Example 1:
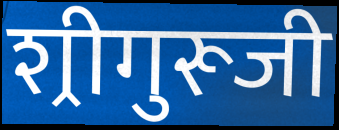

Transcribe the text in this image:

श्रीगुरूजी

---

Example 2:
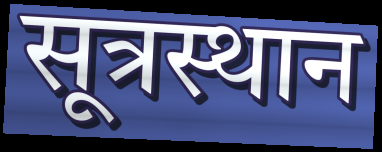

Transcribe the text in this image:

सूत्रस्थान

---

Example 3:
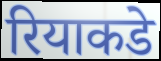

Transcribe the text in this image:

रियाकडे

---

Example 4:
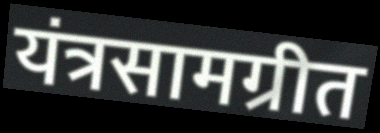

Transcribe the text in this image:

यंत्रसामग्रीत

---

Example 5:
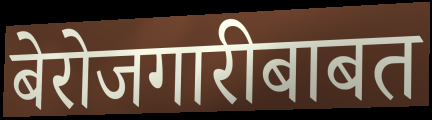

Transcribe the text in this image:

बेरोजगारीबाबत